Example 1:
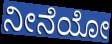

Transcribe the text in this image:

ನೀನೆಯೋ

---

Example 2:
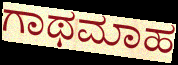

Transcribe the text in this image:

ಗಾಥಮಾಹ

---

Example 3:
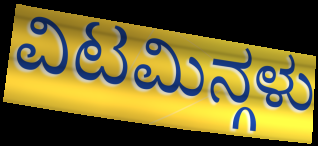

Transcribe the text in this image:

ವಿಟಮಿನ್ಗಳು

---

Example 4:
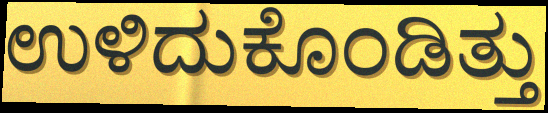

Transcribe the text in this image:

ಉಳಿದುಕೊಂಡಿತ್ತು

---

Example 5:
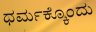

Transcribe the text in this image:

ಧರ್ಮಕ್ಕೊಂದು